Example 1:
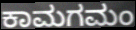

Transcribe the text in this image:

ಕಾಮಗಮಂ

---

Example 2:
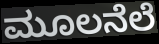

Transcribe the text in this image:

ಮೂಲನೆಲೆ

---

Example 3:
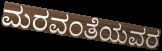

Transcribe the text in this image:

ಮರವಂತೆಯವರ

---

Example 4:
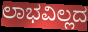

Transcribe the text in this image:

ಲಾಭವಿಲ್ಲದ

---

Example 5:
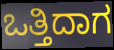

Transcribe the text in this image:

ಒತ್ತಿದಾಗ